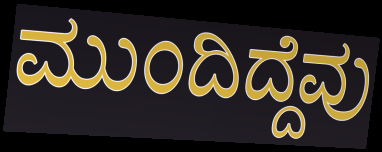
ಮುಂದಿದ್ದೆವು